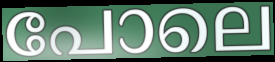
പോലെ